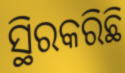
ସ୍ଥିରକରିଛି